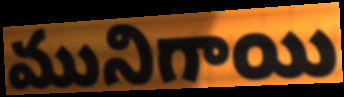
మునిగాయి